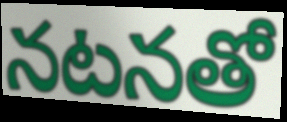
నటనతో